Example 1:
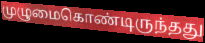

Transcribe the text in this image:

முழுமைகொண்டிருந்தது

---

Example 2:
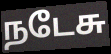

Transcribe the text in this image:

நடேசு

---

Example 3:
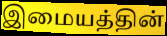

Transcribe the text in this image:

இமையத்தின்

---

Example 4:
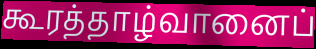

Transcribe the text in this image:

கூரத்தாழ்வானைப்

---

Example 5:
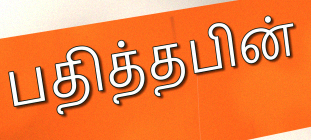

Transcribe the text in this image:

பதித்தபின்